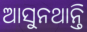
ଆସୁନଥାନ୍ତି